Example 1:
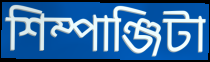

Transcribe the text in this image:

শিম্পাঞ্জিটা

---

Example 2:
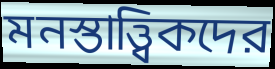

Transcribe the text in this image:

মনস্তাত্ত্বিকদের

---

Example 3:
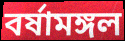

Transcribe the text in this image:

বর্ষামঙ্গল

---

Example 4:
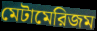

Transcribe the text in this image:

মেটামেরিজম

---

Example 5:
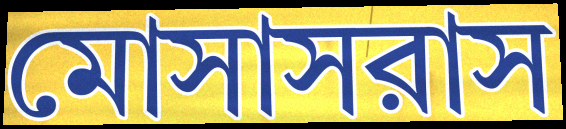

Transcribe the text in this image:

মোসাসরাস